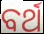
ବର୍ଥ